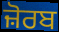
ਜ਼ੋਰਬ